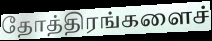
தோத்திரங்களைச்